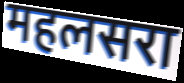
महलसरा